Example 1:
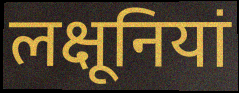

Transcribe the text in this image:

लक्षूनियां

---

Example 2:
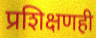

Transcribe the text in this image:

प्रशिक्षणही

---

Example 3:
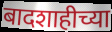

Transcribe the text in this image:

बादशाहीच्या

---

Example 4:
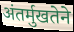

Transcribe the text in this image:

अंतर्मुखतेने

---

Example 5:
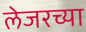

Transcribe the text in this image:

लेजरच्या